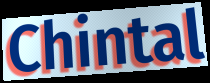
Chintal